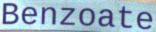
Benzoate